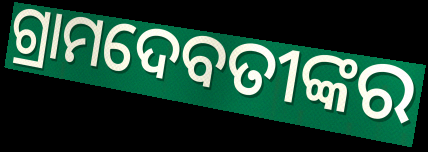
ଗ୍ରାମଦେବତୀଙ୍କର